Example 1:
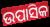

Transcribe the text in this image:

ଉପାସିକ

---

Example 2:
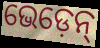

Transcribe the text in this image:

ଭେଡ଼େନ୍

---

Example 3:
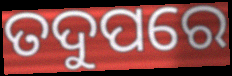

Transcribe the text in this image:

ତଦୁପରେ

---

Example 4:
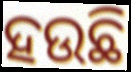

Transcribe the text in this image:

ହଉଛି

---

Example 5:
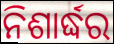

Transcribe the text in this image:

ନିଶାର୍ଦ୍ଧର